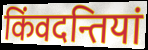
किंवदन्तियां